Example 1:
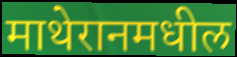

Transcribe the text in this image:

माथेरानमधील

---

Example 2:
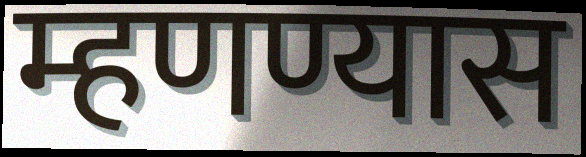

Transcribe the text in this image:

म्हणण्यास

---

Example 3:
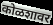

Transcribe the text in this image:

कोळशावर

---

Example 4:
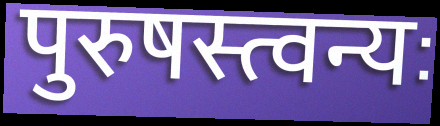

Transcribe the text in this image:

पुरुषस्त्वन्यः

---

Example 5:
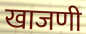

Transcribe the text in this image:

खाजणी